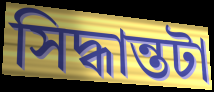
সিদ্ধান্তটা